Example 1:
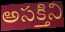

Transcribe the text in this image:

అసక్తిని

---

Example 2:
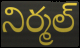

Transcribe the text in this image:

నిర్మల్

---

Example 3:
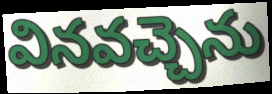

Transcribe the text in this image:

వినవచ్చెను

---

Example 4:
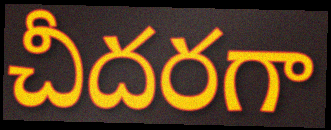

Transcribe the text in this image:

చీదరగా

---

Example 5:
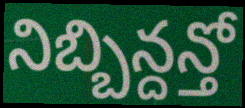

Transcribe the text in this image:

నిబ్బిన్దన్తో